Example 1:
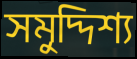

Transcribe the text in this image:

সমুদ্দিশ্য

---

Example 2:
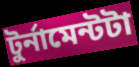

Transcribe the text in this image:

টুর্নামেন্টটা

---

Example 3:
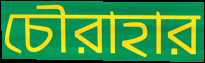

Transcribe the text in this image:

চৌরাহার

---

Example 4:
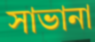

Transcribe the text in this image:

সাভানা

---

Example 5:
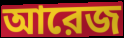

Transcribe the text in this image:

আরেজ